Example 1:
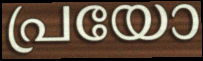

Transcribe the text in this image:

പ്രയോ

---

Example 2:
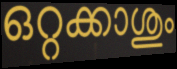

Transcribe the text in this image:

ഒറ്റക്കാശും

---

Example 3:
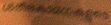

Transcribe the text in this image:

ശരീരകാമനകളുടെ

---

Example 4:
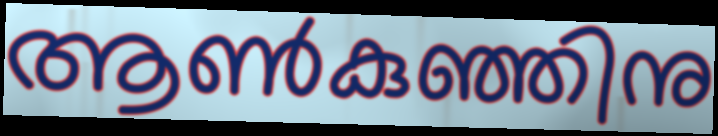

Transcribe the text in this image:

ആൺകുഞ്ഞിനു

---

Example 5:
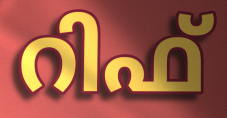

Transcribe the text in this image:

റിഫ്